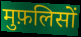
मुफ़लिसों